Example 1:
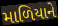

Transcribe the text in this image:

માળિયાને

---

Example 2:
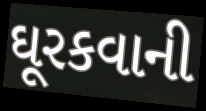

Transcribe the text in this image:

ઘૂરકવાની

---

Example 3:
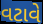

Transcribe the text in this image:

વટાવે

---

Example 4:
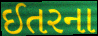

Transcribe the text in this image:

ઈતરના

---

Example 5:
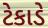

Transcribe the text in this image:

ટેકાડે